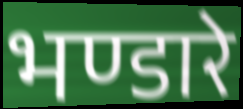
भण्डारे